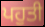
ਪਹੁਤੀ